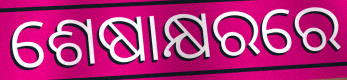
ଶେଷାକ୍ଷରରେ